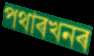
পথাৰখনৰ